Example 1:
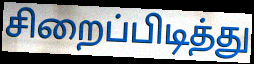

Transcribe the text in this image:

சிறைப்பிடித்து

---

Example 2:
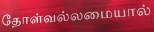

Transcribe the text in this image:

தோள்வல்லமையால்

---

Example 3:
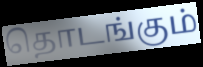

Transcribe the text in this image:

தொடங்கும்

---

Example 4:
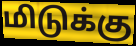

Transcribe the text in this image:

மிடுக்கு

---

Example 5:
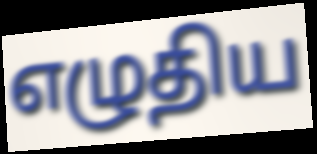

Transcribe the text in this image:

எழுதிய